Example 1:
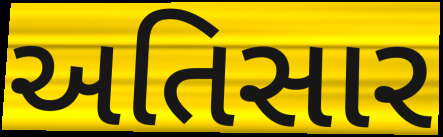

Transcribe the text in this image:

અતિસાર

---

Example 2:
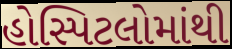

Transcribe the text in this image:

હોસ્પિટલોમાંથી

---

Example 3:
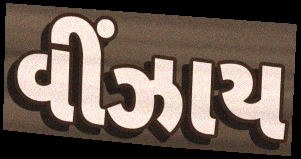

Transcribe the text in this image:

વીંઝાય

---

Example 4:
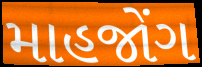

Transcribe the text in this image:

માહજોંગ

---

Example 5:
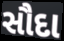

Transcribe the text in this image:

સૌદા